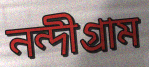
নন্দীগ্রাম